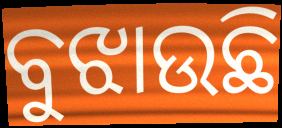
ବୁଝାଉଛି